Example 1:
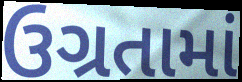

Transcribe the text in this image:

ઉગ્રતામાં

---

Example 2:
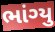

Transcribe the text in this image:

ભાંગ્યુ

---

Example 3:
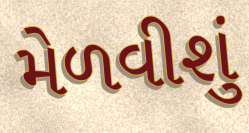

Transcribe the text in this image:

મેળવીશું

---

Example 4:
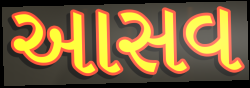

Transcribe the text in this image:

આસવ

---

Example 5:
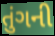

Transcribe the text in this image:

તુંગની